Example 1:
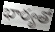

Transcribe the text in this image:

భార్యతో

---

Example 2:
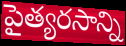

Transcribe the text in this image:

పైత్యరసాన్ని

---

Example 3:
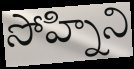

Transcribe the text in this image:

సోహ్నిని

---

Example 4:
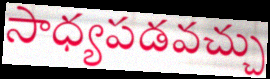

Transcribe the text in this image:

సాధ్యపడవచ్చు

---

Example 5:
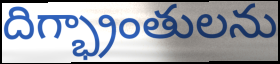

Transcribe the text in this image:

దిగ్భ్రాంతులను